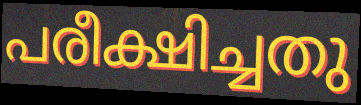
പരീക്ഷിച്ചതു